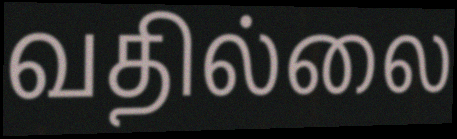
வதில்லை